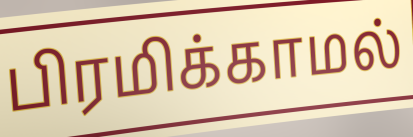
பிரமிக்காமல்